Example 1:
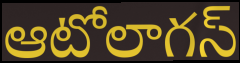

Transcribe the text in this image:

ఆటోలాగస్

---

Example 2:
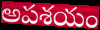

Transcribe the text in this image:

అపశయం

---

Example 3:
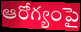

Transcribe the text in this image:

ఆరోగ్యంపై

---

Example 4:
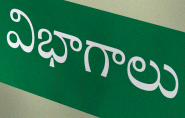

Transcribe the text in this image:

విభాగాలు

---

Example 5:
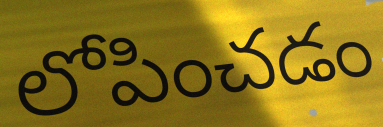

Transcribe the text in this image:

లోపించడం